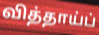
வித்தாய்ப்